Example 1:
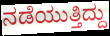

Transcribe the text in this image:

ನಡೆಯುತ್ತಿದ್ದು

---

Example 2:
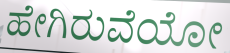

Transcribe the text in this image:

ಹೇಗಿರುವೆಯೋ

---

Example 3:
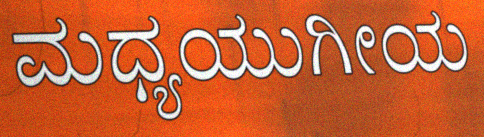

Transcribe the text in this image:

ಮಧ್ಯಯುಗೀಯ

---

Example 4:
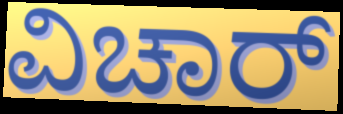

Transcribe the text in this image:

ವಿಚಾರ್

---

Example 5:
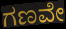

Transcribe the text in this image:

ಗಣವೇ